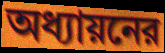
অধ্যায়নের